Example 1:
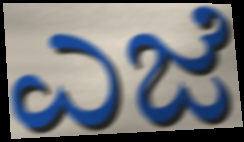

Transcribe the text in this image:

ಎಜೆ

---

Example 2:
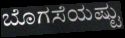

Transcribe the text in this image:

ಬೊಗಸೆಯಷ್ಟು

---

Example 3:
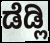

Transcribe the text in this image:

ಡೆಡ್ಲಿ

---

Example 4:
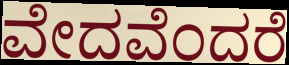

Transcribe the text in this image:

ವೇದವೆಂದರೆ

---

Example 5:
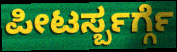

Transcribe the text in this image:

ಪೀಟರ್ಸ್ಬರ್ಗ್ಗೆ